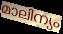
മാലിന്യം